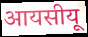
आयसीयू